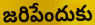
జరిపేందుకు